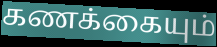
கணக்கையும்